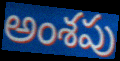
అంశపు